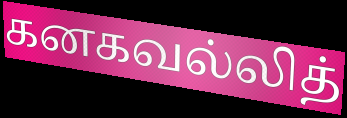
கனகவல்லித்